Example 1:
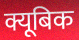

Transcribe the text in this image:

क्यूबिक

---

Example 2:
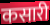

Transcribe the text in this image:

कसारी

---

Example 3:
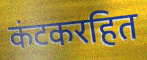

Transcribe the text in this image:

कंटकरहित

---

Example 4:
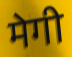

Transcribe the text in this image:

मेगी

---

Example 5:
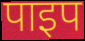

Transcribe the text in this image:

पाइप